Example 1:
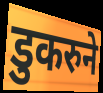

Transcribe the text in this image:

डुकरुने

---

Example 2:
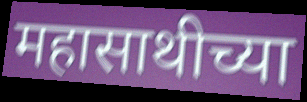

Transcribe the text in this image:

महासाथीच्या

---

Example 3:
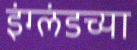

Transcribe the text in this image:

इंग्लंडच्या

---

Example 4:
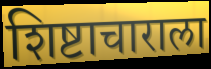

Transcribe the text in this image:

शिष्टाचाराला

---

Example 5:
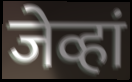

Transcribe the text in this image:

जेव्हां